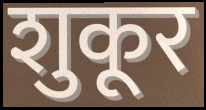
शुकूर